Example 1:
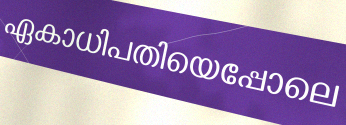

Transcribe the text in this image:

ഏകാധിപതിയെപ്പോലെ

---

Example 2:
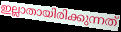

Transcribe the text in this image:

ഇല്ലാതായിരിക്കുന്നത്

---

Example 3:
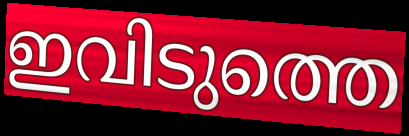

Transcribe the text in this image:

ഇവിടുത്തെ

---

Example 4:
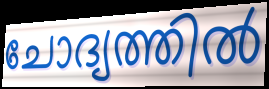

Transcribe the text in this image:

ചോദ്യത്തിൽ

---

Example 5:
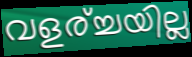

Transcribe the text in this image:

വളര്ച്ചയില്ല